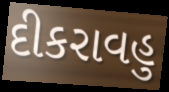
દીકરાવહુ